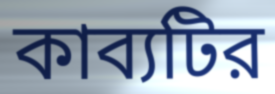
কাব্যটির